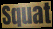
Squat